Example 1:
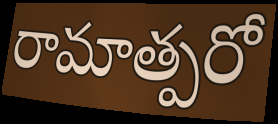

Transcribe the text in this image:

రామాత్పరో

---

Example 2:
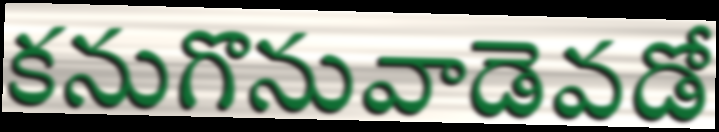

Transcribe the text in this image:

కనుగొనువాడెవడో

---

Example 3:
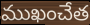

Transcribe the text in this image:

ముఖంచేత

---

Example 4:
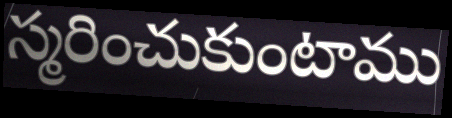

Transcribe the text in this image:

స్మరించుకుంటాము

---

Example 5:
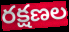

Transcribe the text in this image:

రక్షణల